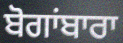
ਬੋਗਾਂਬਾਰਾ